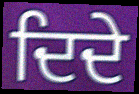
ਦਿਦੇ